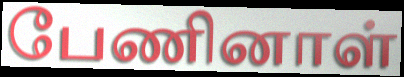
பேணினாள்